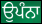
ਉਪੰਨਾ